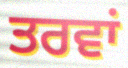
ਤਰਵਾਂ